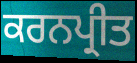
ਕਰਨਪ੍ਰੀਤ